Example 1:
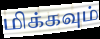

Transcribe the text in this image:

மிக்கவும்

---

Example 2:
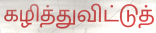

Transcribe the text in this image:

கழித்துவிட்டுத்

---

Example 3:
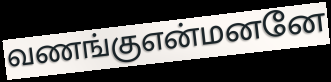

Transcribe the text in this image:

வணங்குஎன்மனனே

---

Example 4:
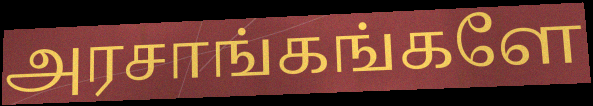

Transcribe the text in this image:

அரசாங்கங்களே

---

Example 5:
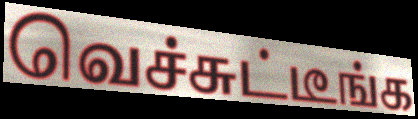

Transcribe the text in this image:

வெச்சுட்டீங்க